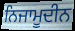
ਨਿਜਾਮੂਦੀਨ